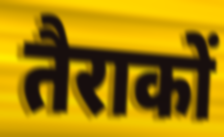
तैराकों